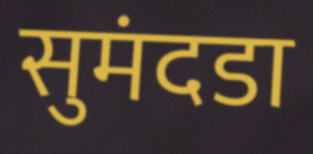
सुमंदडा